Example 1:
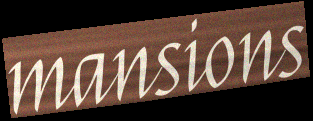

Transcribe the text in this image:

mansions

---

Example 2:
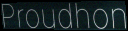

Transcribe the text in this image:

Proudhon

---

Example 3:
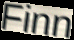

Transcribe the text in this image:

Finn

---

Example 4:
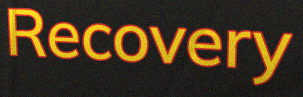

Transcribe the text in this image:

Recovery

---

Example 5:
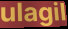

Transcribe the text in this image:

ulagil